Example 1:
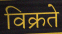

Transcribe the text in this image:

विक्रते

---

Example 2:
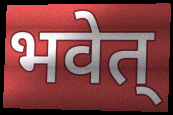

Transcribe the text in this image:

भवेत्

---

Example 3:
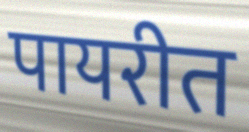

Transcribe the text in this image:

पायरीत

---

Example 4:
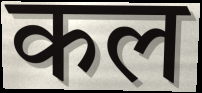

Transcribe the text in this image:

कल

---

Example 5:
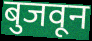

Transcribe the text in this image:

बुजवून